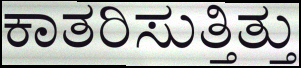
ಕಾತರಿಸುತ್ತಿತ್ತು